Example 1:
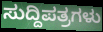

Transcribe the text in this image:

ಸುದ್ದಿಪತ್ರಗಳು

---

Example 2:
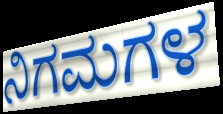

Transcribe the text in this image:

ನಿಗಮಗಳ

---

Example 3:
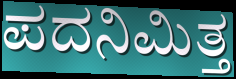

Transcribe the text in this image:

ಪದನಿಮಿತ್ತ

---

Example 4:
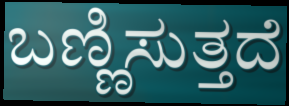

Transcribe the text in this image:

ಬಣ್ಣಿಸುತ್ತದೆ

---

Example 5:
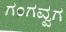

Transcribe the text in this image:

ಗಂಗವ್ವಗ